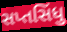
સપ્તસિંધુ